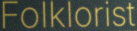
Folklorist